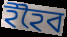
ইহৈব